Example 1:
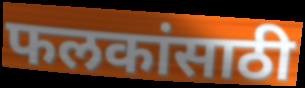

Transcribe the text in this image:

फलकांसाठी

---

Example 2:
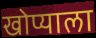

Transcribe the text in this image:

खोप्याला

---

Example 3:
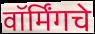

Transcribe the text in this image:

वॉर्मिंगचे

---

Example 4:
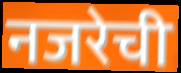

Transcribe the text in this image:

नजरेची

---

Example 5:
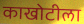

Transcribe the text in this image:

काखोटीला